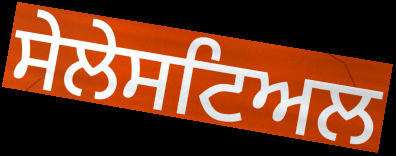
ਸੇਲੇਸਟਿਅਲ